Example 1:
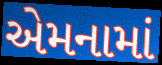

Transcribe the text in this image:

એમનામાં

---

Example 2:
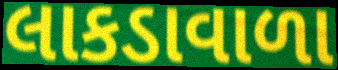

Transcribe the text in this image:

લાકડાવાળા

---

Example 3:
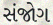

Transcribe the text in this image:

સંજોગ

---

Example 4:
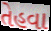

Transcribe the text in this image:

તેહવા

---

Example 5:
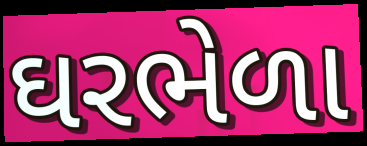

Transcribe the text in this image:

ઘરભેળા